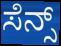
ಸೆನ್ಸ್